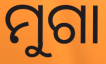
ମୁଗା